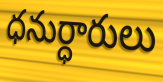
ధనుర్ధారులు